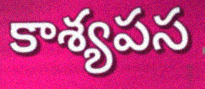
కాశ్యపస